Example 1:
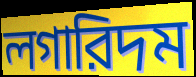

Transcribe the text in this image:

লগারিদম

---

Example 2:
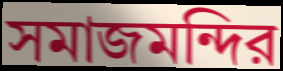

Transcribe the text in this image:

সমাজমন্দির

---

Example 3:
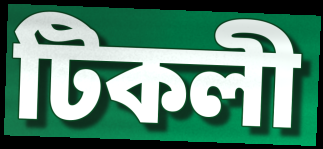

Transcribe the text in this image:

টিকলী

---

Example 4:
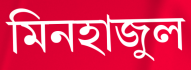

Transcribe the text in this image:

মিনহাজুল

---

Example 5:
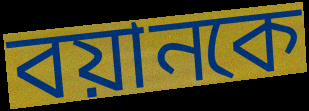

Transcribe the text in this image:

বয়ানকে